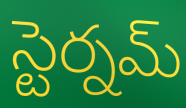
స్టెర్నమ్